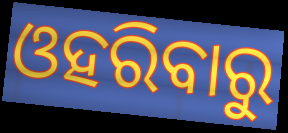
ଓହରିବାରୁ